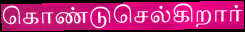
கொண்டுசெல்கிறார்